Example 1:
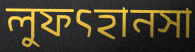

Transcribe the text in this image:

লুফৎহানসা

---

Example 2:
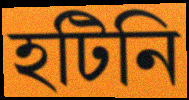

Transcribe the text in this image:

হটিনি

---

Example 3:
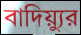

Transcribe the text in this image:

বাদিয়্যুর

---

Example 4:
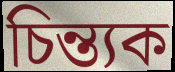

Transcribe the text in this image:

চিন্ত্যক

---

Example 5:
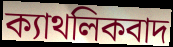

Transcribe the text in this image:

ক্যাথলিকবাদ